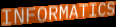
INFORMATICS